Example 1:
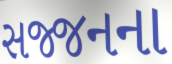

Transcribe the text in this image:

સજ્જનના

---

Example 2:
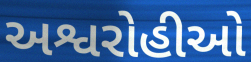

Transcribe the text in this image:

અશ્વરોહીઓ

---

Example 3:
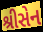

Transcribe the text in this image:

શ્રીસેન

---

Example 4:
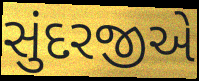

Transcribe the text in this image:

સુંદરજીએ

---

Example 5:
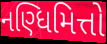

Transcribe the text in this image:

નણ્ધિમિત્તો